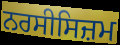
ਨਰਸੀਸਿਜ਼ਮ